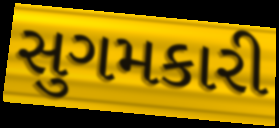
સુગમકારી